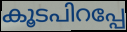
കൂടപിറപ്പേ